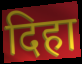
दिहा